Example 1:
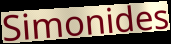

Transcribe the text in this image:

Simonides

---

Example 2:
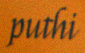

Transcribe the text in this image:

puthi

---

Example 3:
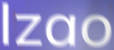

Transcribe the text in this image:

Izao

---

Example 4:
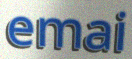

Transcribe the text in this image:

emai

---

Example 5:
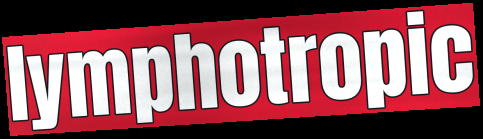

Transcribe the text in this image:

lymphotropic